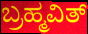
ಬ್ರಹ್ಮವಿತ್